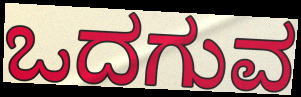
ಒದಗುವ